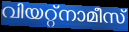
വിയറ്റ്നാമീസ്